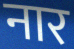
नार